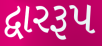
દ્વારરૂપ